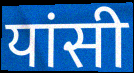
यांसी